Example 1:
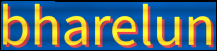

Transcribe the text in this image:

bharelun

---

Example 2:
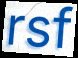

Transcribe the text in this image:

rsf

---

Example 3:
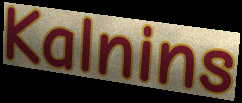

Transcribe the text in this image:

Kalnins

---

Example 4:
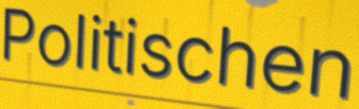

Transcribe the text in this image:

Politischen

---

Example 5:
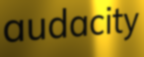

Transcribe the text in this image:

audacity